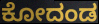
ಕೋದಂಡ